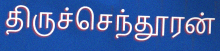
திருச்செந்தூரன்